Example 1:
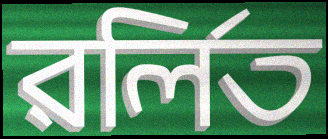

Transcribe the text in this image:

ৱৰ্লিত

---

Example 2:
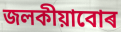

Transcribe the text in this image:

জলকীয়াবোৰ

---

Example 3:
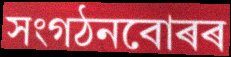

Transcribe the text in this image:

সংগঠনবোৰৰ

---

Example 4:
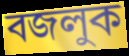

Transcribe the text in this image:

বজলুক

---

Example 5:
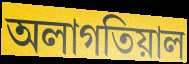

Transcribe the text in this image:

অলাগতিয়াল